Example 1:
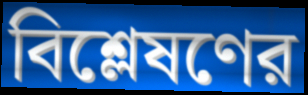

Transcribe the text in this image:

বিশ্লেষণের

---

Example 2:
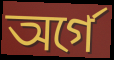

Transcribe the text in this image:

অর্গে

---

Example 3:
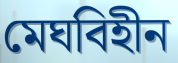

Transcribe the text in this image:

মেঘবিহীন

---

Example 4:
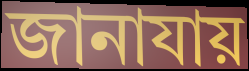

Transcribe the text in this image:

জানাযায়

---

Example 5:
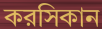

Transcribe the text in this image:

করসিকান